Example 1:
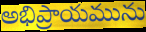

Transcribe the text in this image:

అభిప్రాయమును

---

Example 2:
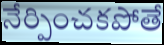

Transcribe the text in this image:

నేర్పించకపోతే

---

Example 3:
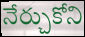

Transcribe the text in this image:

నేర్చుకోని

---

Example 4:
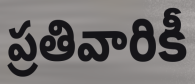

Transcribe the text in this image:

ప్రతివారికీ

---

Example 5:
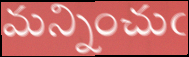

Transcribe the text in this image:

మన్నించుఁ